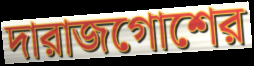
দারাজগোশের